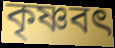
কৃষ্ণবৎ